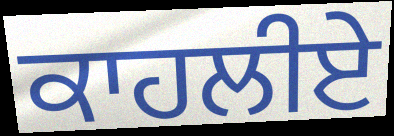
ਕਾਹਲੀਏ